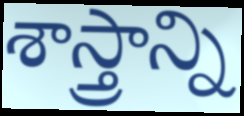
శాస్త్రాన్ని